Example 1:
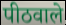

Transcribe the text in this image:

पीठवाले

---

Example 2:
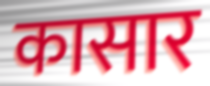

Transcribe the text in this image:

कासार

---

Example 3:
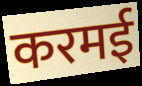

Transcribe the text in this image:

करमई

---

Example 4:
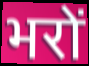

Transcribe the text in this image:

भरों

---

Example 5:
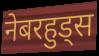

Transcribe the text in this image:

नेबरहुड्स